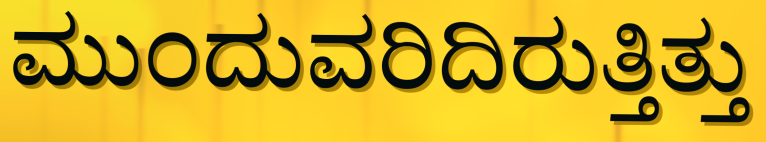
ಮುಂದುವರಿದಿರುತ್ತಿತ್ತು